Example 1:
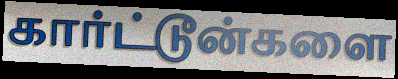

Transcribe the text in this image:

கார்ட்டூன்களை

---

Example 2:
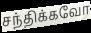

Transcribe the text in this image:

சந்திக்கவோ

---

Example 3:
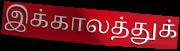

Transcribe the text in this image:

இக்காலத்துக்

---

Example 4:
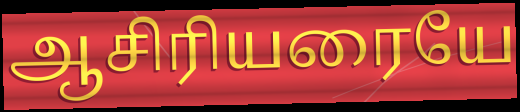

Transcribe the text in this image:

ஆசிரியரையே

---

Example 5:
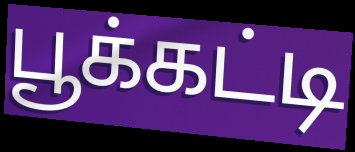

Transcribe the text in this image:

பூக்கட்டி